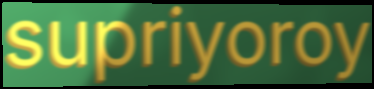
supriyoroy